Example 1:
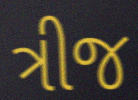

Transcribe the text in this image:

ત્રીજ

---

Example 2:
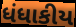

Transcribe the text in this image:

ધંધાકીય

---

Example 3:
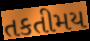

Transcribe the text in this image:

તકતીમય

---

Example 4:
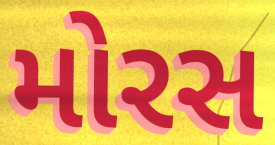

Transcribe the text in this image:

મોરસ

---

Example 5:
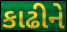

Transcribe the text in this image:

કાઢીને